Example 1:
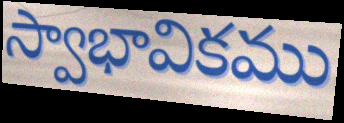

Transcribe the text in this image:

స్వాభావికము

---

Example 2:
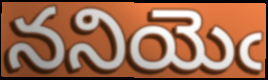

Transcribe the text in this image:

ననియెఁ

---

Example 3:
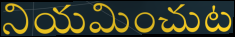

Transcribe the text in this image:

నియమించుట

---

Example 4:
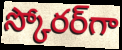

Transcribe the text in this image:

స్కోరర్‌గా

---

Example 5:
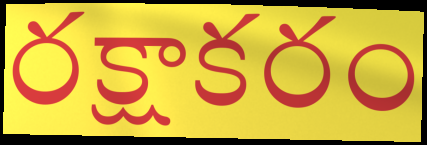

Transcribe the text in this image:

రక్షాకరం